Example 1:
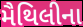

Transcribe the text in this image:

મૈથિલીના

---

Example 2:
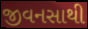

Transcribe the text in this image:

જીવનસાથી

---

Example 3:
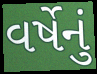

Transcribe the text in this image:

વર્ષેનું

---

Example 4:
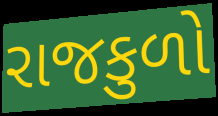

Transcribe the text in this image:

રાજકુળો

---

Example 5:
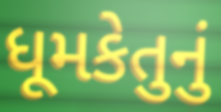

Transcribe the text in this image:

ધૂમકેતુનું